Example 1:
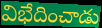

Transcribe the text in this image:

విభేదించాడు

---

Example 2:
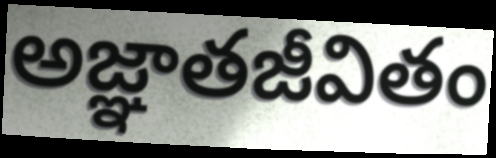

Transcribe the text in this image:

అజ్ఞాతజీవితం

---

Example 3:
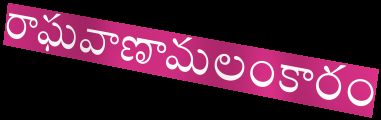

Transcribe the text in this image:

రాఘవాణామలంకారం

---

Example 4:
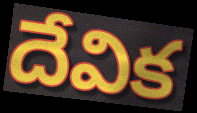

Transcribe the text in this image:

దేవిక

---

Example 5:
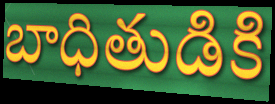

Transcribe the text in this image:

బాధితుడికి